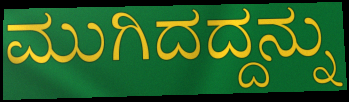
ಮುಗಿದದ್ದನ್ನು